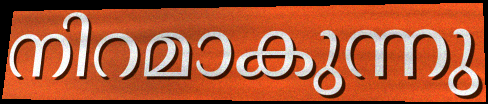
നിറമാകുന്നു